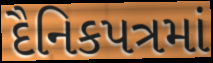
દૈનિકપત્રમાં